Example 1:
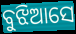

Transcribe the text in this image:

ବୁଝିଆସେ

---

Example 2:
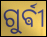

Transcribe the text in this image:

ଗୁର୍ଵୀ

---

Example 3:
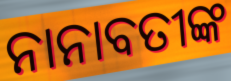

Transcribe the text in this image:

ନାନାବତୀଙ୍କ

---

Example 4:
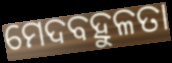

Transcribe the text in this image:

ମେଦବହୁଳତା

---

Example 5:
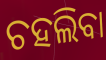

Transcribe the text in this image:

ଚହଲିବା